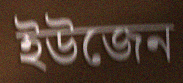
ইউজেন